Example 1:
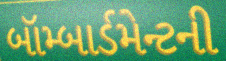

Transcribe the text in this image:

બૉમ્બાર્ડમેન્ટની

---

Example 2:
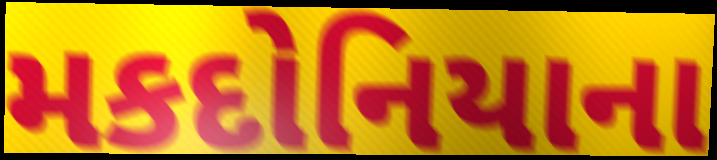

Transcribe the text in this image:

મકદોનિયાના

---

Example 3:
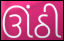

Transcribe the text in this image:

ઊંઠી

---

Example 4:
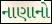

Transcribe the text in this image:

નાણાનો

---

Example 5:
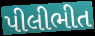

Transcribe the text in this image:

પીલીભીત